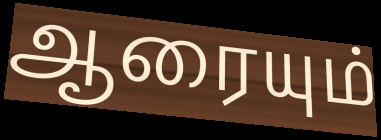
ஆரையும்